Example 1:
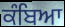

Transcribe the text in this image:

ਕੰਬਿਆ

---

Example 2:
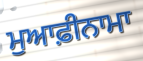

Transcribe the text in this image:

ਮੁਆਫ਼ੀਨਾਮਾ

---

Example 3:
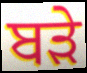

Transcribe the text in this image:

ਬਡ਼ੇ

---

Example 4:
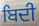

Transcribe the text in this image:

ਬਿਦੀ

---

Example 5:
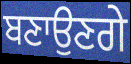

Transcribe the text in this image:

ਬਣਾਉਣਗੇ